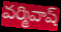
వర్మివాష్